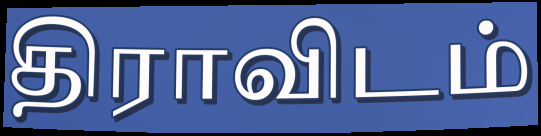
திராவிடம்